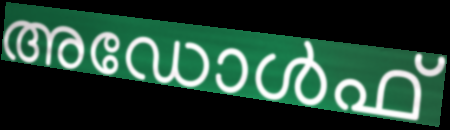
അഡോൾഫ്